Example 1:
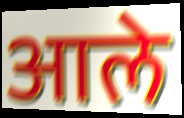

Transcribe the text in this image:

आले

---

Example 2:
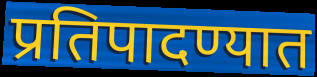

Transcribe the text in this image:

प्रतिपादण्यात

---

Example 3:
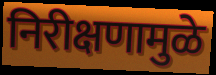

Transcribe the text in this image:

निरीक्षणामुळे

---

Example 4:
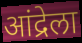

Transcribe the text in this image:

आंद्रेला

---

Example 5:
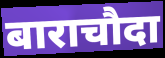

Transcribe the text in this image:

बाराचौदा